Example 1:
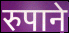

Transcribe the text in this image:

रुपाने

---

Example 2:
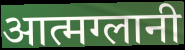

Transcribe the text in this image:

आत्मग्लानी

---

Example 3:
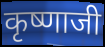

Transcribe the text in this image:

कृष्णाजी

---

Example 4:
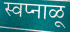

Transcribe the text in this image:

स्वप्नाळू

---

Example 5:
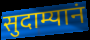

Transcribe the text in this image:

सुदाम्यानं